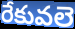
రేకువలె